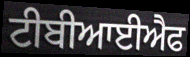
ਟੀਬੀਆਈਐਫ